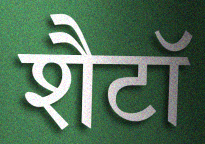
शैटॉ